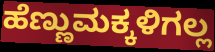
ಹೆಣ್ಣುಮಕ್ಕಳಿಗಲ್ಲ